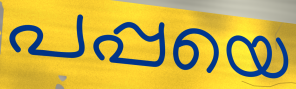
പപ്പയെ